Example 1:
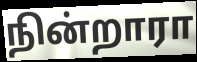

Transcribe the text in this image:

நின்றாரா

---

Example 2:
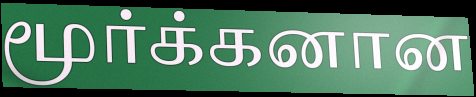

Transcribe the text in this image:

மூர்க்கனான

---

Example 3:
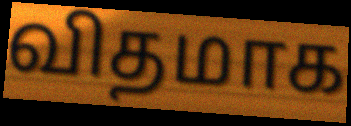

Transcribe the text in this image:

விதமாக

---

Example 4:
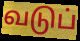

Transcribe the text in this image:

வடுப்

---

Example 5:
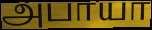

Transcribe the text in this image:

அபாயா